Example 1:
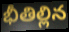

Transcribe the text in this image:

భీతిల్లిన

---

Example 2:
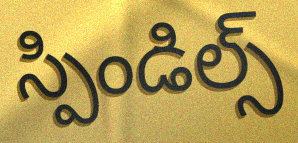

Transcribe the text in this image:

స్పిండిల్స్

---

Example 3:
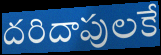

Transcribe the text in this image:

దరిదాపులకే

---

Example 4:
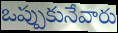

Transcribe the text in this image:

ఒప్పుకునేవారు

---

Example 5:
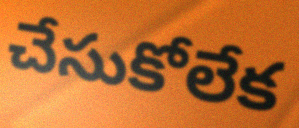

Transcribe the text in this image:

చేసుకోలేక